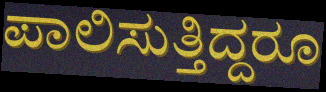
ಪಾಲಿಸುತ್ತಿದ್ದರೂ